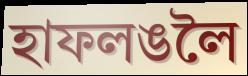
হাফলঙলৈ